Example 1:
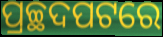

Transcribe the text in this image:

ପ୍ରଚ୍ଛଦପଟରେ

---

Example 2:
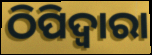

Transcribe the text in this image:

ଠିପିଦ୍ଵାରା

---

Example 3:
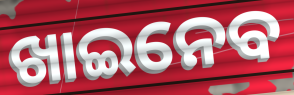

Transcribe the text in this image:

ଖାଇନେବ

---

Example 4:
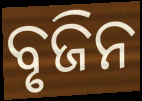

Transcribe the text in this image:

ବୃଜିନ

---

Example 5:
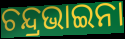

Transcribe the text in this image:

ଚନ୍ଦ୍ରଭାଇନା